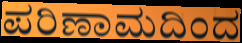
ಪರಿಣಾಮದಿಂದ